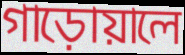
গাড়োয়ালে